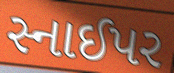
સ્નાઈપર